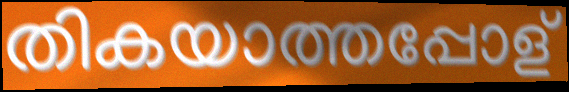
തികയാത്തപ്പോള്